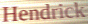
Hendrick